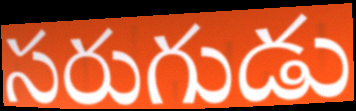
సరుగుడు